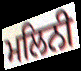
ਮਲਿਨੀ